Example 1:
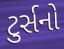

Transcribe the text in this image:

ટુર્સનો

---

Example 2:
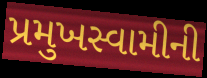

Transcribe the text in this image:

પ્રમુખસ્વામીની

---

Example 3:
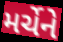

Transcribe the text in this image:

મર્ચેને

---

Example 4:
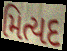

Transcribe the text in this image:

મિત્યદ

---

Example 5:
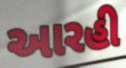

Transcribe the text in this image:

આરહી